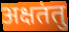
अक्षतंतु